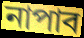
নাপাব